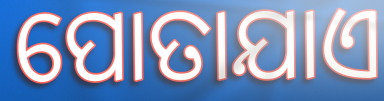
ପୋତାଯାଏ